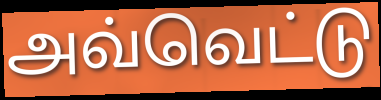
அவ்வெட்டு